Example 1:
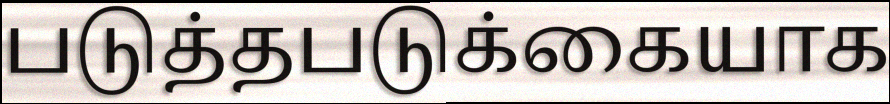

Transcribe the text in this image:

படுத்தபடுக்கையாக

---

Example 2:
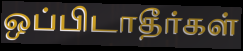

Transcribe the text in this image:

ஒப்பிடாதீர்கள்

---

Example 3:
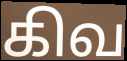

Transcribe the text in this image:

கிவ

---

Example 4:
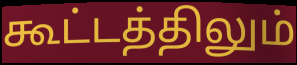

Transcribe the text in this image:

கூட்டத்திலும்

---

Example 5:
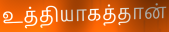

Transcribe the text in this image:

உத்தியாகத்தான்